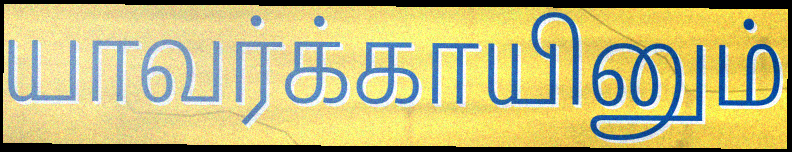
யாவர்க்காயினும்